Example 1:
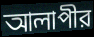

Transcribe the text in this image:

আলাপীর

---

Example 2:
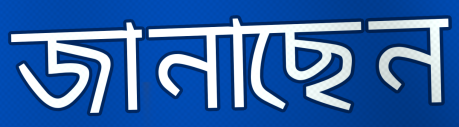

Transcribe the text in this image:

জানাছেন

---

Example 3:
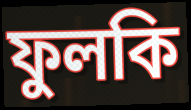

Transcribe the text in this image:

ফুলকি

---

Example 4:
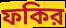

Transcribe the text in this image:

ফকির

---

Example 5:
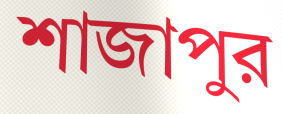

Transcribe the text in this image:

শাজাপুর